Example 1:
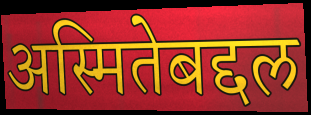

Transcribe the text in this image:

अस्मितेबद्दल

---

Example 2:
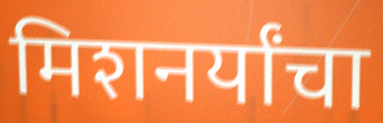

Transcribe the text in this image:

मिशनर्यांचा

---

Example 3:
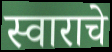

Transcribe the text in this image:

स्वाराचे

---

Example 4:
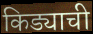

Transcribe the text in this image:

किड्याची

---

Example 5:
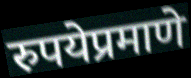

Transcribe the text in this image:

रुपयेप्रमाणे